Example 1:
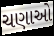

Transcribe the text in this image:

ચણાઓ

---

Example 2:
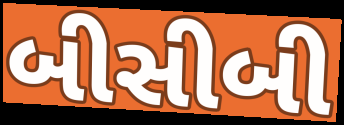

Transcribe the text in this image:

બીસીબી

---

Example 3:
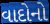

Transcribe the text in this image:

વાદોનો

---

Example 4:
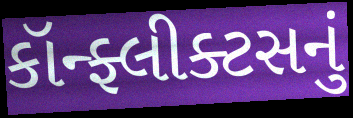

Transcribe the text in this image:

કૉન્ફ્લીક્ટસનું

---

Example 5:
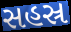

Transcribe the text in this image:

સહસ્ર